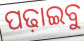
ପଢ଼ାଇବୁ